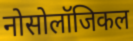
नोसोलॉजिकल